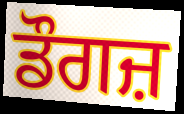
ਡੌਗਜ਼